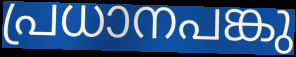
പ്രധാനപങ്കു